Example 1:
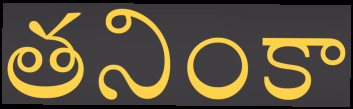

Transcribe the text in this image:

తనింకా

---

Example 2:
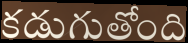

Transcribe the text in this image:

కడుగుతోంది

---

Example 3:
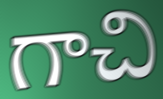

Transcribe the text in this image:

గాచి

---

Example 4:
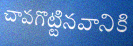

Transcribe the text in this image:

చావగొట్టినవానికి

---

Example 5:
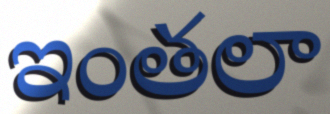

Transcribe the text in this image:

ఇంతలా